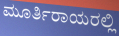
ಮೂರ್ತಿರಾಯರಲ್ಲಿ